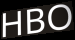
HBO